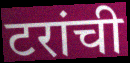
टरांची